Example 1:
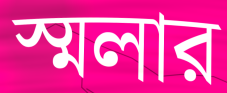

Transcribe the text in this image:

স্মলার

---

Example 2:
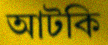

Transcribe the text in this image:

আটকি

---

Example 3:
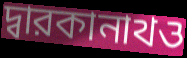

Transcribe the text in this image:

দ্বারকানাথও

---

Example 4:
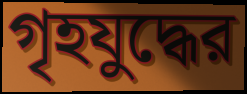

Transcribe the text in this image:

গৃহযুদ্ধের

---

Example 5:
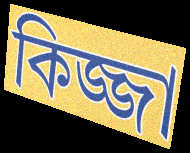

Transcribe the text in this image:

কিজ্জা